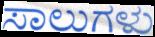
ಸಾಲುಗಳು